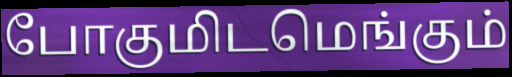
போகுமிடமெங்கும்